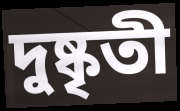
দুষ্কৃতী